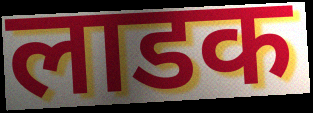
लाडक